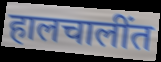
हालचालींत